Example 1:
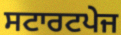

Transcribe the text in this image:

ਸਟਾਰਟਪੇਜ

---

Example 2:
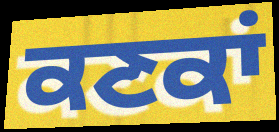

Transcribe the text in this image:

ਕਣਕਾਂ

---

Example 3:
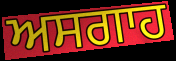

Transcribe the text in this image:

ਅਸਗਾਹ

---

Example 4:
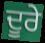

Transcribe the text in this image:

ਦੂਰੇ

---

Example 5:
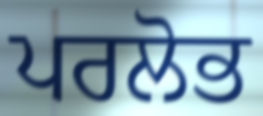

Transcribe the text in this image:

ਪਰਲੋਭ